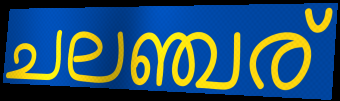
ചലഞ്ചര്